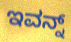
ಇವನ್ನ್